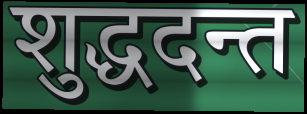
शुद्धदन्त